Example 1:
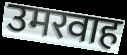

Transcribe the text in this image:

उमरवाह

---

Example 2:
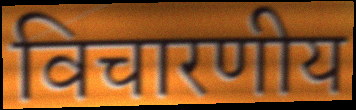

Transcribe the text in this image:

विचारणीय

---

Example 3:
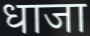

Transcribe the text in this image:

धाजा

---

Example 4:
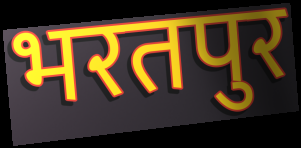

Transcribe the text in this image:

भरतपुर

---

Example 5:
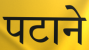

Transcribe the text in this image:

पटाने